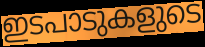
ഇടപാടുകളുടെ